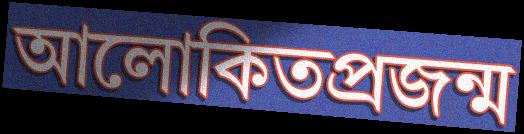
আলোকিতপ্রজন্ম